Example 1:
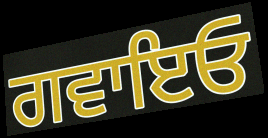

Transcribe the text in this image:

ਗਵਾਇਓ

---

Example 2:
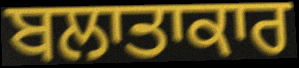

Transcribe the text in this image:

ਬਲਾਤਾਕਾਰ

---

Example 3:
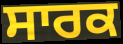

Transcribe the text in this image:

ਸਾਰਕ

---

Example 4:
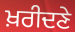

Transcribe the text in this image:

ਖ਼ਰੀਦਣੇ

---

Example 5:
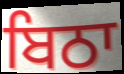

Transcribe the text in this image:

ਬਿਠਾ